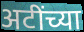
अटींच्या